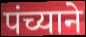
पंच्याने